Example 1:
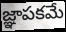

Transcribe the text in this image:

జ్ఞాపకమే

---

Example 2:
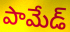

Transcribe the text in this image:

పామేడ్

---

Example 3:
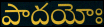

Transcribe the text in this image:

పాదయోః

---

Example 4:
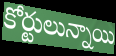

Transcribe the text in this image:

కోర్టులున్నాయి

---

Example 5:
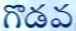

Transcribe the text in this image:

గొడవ